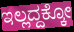
ಇಲ್ಲದ್ದಕ್ಕೋ